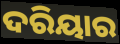
ଦରିୟାର